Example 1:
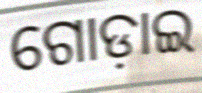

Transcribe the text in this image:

ଗୋଡ଼ାଇ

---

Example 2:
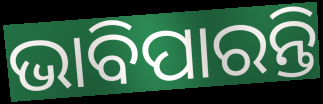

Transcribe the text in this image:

ଭାବିପାରନ୍ତି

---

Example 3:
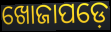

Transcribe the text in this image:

ଖୋଜାପଡ଼େ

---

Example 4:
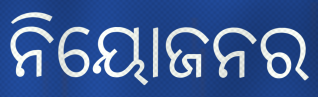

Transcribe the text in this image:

ନିୟୋଜନର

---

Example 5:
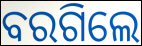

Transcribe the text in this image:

ବରଗିଲେ